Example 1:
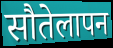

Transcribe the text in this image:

सौतेलापन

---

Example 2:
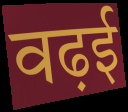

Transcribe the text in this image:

वढ़ई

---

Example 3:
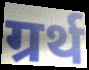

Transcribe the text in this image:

ग्रर्थ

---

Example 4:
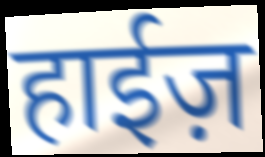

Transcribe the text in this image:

हाईज़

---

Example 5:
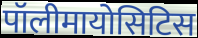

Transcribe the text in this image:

पॉलीमायोसिटिस